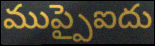
ముప్పైఐదు